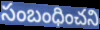
సంబంధించని